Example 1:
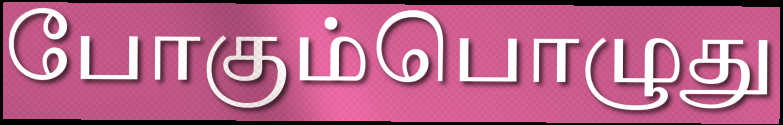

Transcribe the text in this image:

போகும்பொழுது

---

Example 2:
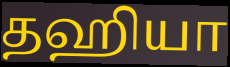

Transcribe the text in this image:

தஹியா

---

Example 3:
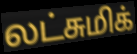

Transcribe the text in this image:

லட்சுமிக்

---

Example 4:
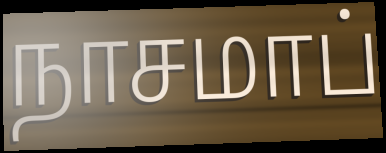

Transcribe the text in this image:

நாசமாப்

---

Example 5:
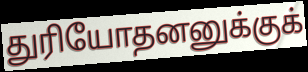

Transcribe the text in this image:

துரியோதனனுக்குக்